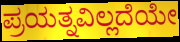
ಪ್ರಯತ್ನವಿಲ್ಲದೆಯೇ